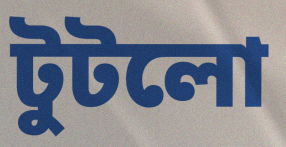
টুটলো